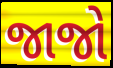
જાજો